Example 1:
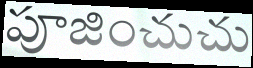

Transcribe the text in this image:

పూజించుచు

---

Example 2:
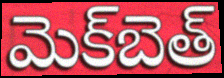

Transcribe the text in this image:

మెక్‌బెత్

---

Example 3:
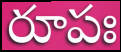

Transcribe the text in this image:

రూపః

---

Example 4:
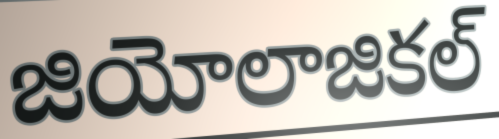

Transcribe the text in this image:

జియోలాజికల్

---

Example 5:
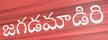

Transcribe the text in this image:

జగడమాడిరి